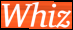
Whiz